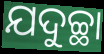
ଯଦୁଚ୍ଛା